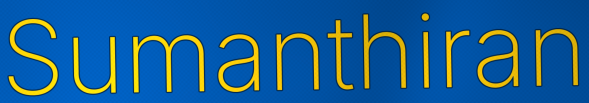
Sumanthiran